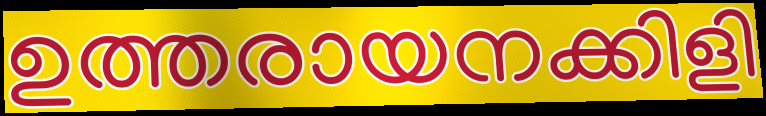
ഉത്തരായനക്കിളി